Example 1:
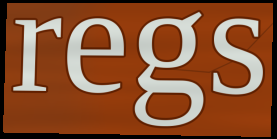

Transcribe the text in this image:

regs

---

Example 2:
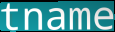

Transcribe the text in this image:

tname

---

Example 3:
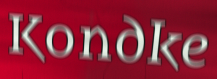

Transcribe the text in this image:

Kondke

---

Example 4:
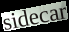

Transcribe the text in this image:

sidecar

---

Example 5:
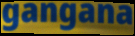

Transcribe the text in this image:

gangana